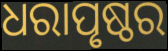
ଧରାପୃଷ୍ଠର